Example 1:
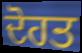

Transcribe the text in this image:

ਦੋਹਤ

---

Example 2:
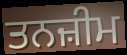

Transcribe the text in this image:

ਤਨਜ਼ੀਮ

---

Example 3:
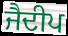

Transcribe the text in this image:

ਜੈਦੀਪ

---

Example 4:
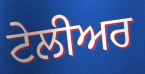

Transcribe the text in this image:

ਟੇਲੀਅਰ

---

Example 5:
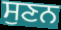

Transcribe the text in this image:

ਸੁਣਨ